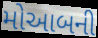
મોઆબની